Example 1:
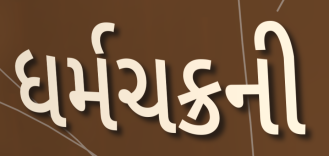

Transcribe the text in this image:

ધર્મચક્રની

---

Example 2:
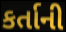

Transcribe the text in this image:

કર્તાની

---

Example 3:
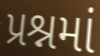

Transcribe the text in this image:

પ્રશ્નમાં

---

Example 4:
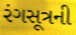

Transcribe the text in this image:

રંગસૂત્રની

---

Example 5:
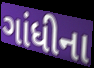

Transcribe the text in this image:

ગાંધીના